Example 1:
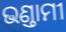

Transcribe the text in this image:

ଭଣ୍ଡାମୀ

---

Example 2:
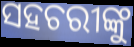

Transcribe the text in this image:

ସହଚରୀଙ୍କୁ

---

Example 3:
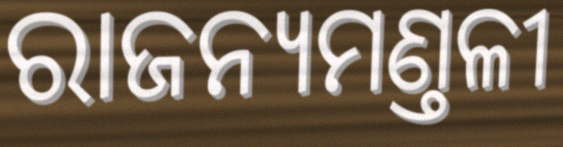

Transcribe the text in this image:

ରାଜନ୍ୟମଣ୍ତଳୀ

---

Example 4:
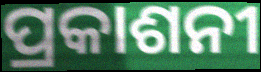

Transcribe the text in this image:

ପ୍ରକାଶନୀ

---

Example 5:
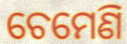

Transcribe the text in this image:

ଚେମେଣି